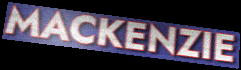
MACKENZIE